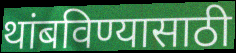
थांबविण्यासाठी